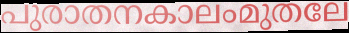
പുരാതനകാലംമുതലേ